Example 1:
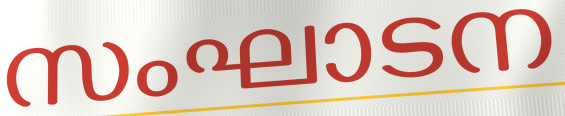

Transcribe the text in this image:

സംഘാടന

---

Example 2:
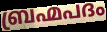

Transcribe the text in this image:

ബ്രഹ്മപദം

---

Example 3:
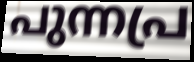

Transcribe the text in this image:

പുന്നപ്ര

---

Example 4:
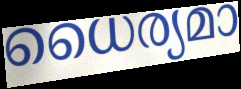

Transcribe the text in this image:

ധൈര്യമാ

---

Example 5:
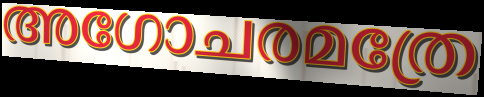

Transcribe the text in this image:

അഗോചരമത്രേ